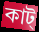
কাট্